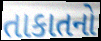
તાકાતનો